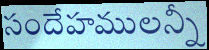
సందేహములన్నీ